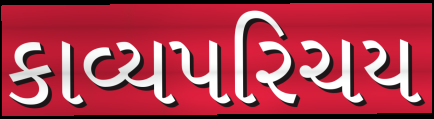
કાવ્યપરિચય